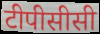
टीपीसीसी